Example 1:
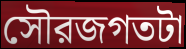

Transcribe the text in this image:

সৌরজগতটা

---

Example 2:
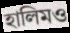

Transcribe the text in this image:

হালিমও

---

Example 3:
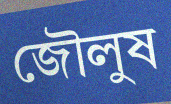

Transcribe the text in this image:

জৌলুষ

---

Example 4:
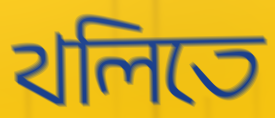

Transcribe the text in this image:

থলিতে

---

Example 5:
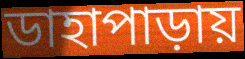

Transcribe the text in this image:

ডাহাপাড়ায়